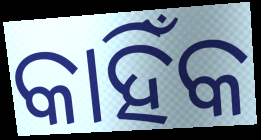
କାହିଁକ